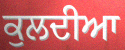
ਕੁਲਦੀਆ